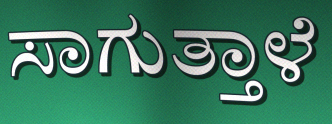
ಸಾಗುತ್ತಾಳೆ